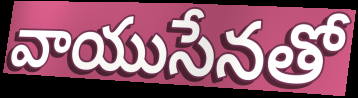
వాయుసేనతో